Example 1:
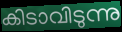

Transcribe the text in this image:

കിടാവിടുന്നു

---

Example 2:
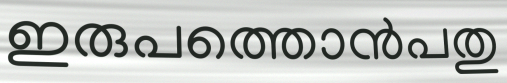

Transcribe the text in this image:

ഇരുപത്തൊൻപതു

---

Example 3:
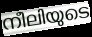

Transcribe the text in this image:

നീലിയുടെ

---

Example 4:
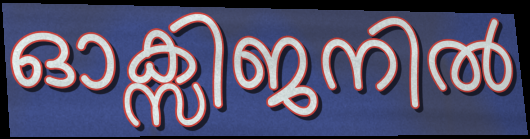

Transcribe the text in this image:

ഓക്സിജനിൽ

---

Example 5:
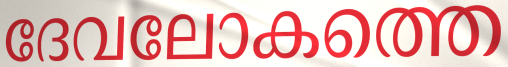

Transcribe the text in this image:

ദേവലോകത്തെ